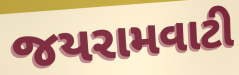
જયરામવાટી